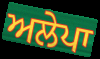
ਅਲੇਪਾ